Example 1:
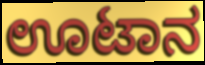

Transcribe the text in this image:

ಊಟಾನ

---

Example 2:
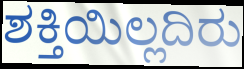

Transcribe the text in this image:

ಶಕ್ತಿಯಿಲ್ಲದಿರು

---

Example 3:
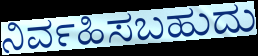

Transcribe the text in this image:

ನಿರ್ವಹಿಸಬಹುದು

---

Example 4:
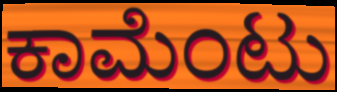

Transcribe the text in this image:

ಕಾಮೆಂಟು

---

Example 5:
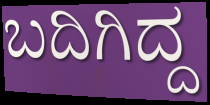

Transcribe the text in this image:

ಬದಿಗಿದ್ದ